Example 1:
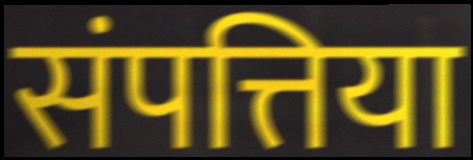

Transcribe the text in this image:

संपत्तिया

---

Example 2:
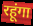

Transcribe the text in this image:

रहूंगा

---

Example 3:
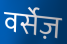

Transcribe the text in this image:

वर्सेज़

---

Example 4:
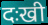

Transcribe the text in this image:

दःखी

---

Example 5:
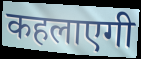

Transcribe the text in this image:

कहलाएगी